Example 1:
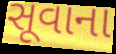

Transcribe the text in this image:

સૂવાના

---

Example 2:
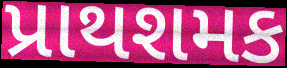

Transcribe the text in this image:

પ્રાથશમક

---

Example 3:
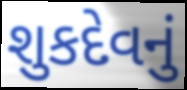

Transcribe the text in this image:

શુકદેવનું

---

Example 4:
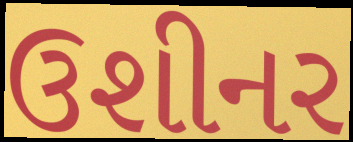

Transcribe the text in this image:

ઉશીનર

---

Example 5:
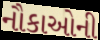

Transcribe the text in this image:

નૌકાઓની